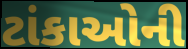
ટાંકાઓની